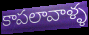
కాపలావాళ్ళ